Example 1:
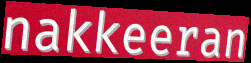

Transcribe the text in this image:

nakkeeran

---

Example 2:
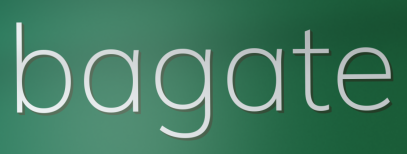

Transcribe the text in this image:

bagate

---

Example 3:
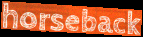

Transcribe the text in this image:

horseback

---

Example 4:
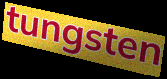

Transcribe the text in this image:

tungsten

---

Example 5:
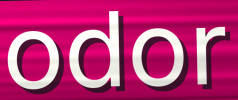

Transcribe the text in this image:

odor